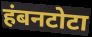
हंबनटोटा